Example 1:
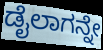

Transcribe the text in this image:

ಡೈಲಾಗನ್ನೇ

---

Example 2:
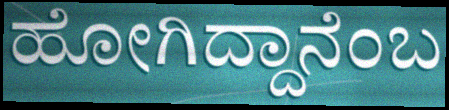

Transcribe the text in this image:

ಹೋಗಿದ್ದಾನೆಂಬ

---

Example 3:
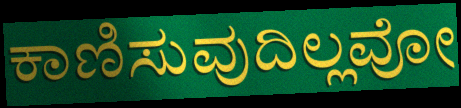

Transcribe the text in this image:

ಕಾಣಿಸುವುದಿಲ್ಲವೋ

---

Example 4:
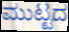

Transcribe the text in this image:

ಮುಟ್ಟದ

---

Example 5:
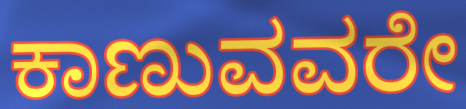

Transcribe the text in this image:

ಕಾಣುವವರೇ